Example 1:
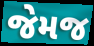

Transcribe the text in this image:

જેમજ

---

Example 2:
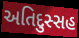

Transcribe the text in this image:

અતિદુસ્સહ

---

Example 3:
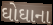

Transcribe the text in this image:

ઘોઘાના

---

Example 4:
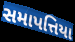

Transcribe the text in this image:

સમાપત્તિયા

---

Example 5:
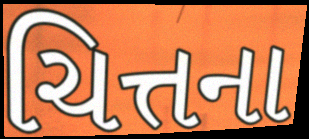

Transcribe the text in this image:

ચિત્તના